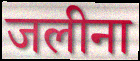
जलीना